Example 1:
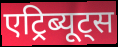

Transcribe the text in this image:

एट्रिब्यूट्स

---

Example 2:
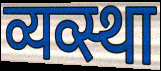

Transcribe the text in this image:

व्यव्स्था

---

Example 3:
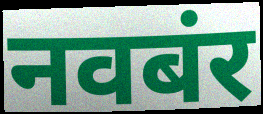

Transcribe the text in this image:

नवबंर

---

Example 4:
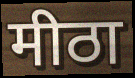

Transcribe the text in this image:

मीठा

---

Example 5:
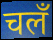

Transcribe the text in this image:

चलँ